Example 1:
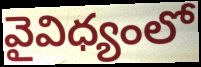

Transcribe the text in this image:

వైవిధ్యంలో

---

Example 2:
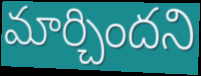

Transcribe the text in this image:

మార్చిందని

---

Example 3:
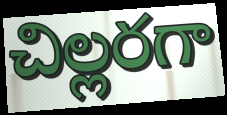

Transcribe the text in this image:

చిల్లరగా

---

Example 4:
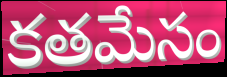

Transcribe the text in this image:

కతమేసం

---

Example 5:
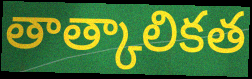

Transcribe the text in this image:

తాత్కాలికత